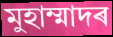
মুহাম্মাদৰ